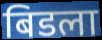
बिडला